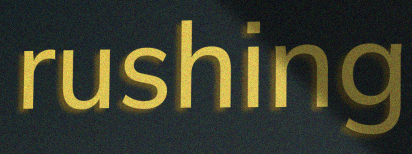
rushing